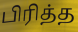
பிரித்த